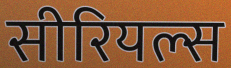
सीरियल्स